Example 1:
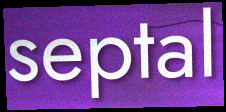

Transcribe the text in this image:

septal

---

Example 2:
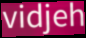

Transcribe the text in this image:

vidjeh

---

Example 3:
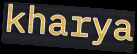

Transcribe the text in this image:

kharya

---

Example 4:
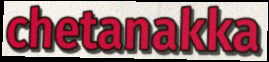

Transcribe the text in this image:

chetanakka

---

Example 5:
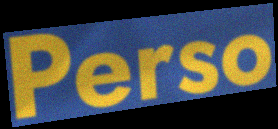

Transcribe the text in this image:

Perso